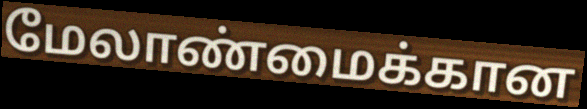
மேலாண்மைக்கான